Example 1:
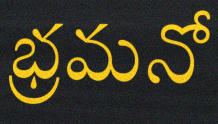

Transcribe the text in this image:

భ్రమనో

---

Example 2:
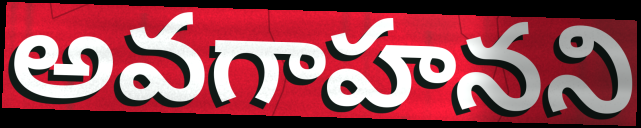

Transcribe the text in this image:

అవగాహనని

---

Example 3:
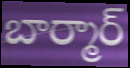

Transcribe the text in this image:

బార్మార్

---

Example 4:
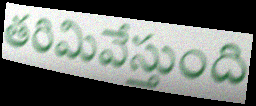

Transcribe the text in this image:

తరిమివేస్తుంది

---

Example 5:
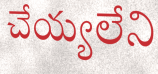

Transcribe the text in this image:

చేయ్యలేని